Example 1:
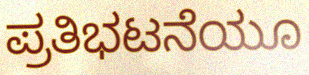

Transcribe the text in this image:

ಪ್ರತಿಭಟನೆಯೂ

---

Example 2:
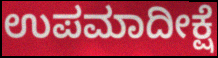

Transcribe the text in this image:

ಉಪಮಾದೀಕ್ಷೆ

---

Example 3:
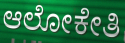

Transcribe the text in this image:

ಆಲೋಕೇತಿ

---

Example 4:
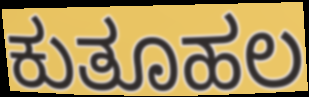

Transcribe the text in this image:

ಕುತೂಹಲ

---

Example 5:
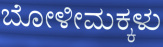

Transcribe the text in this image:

ಬೋಳೀಮಕ್ಕಳು